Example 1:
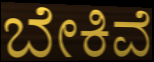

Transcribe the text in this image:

ಬೇಕಿವೆ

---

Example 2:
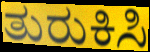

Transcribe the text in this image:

ತುರುಕಿಸಿ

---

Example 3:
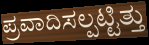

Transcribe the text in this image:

ಪ್ರವಾದಿಸಲ್ಪಟ್ಟಿತ್ತು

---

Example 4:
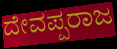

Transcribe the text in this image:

ದೇವಪ್ಪರಾಜ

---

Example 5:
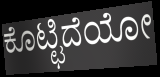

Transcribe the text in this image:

ಕೊಟ್ಟಿದೆಯೋ